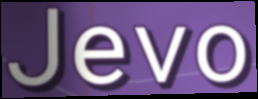
Jevo